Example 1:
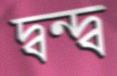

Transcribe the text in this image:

দ্বন্দ্ব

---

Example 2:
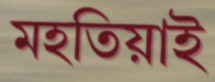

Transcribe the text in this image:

মহতিয়াই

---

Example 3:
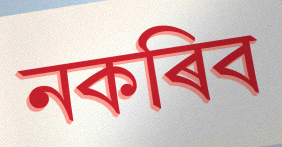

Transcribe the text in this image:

নকৰিব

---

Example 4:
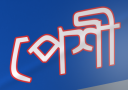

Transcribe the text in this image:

পেশী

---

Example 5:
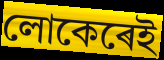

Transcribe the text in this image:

লোকেৰেই